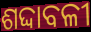
ଶଦ୍ଦାବଳୀ